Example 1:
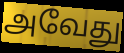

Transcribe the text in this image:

அவேது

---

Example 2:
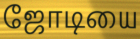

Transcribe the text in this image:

ஜோடியை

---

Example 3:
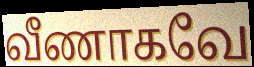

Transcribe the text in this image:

வீணாகவே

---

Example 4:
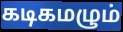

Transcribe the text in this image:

கடிகமழும்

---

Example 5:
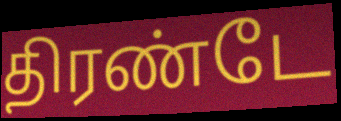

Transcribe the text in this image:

திரண்டே